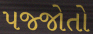
પજ્જોતો